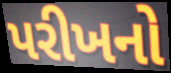
પરીખનો